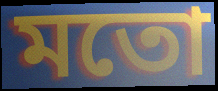
মতো